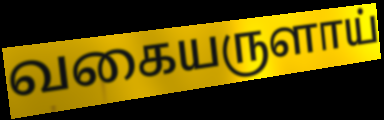
வகையருளாய்